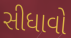
સીધાવો